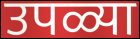
उपळ्या